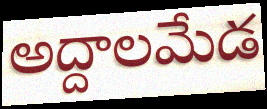
అద్దాలమేడ